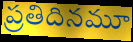
ప్రతిదినమూ